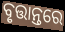
ବୃତ୍ତାନ୍ତରେ